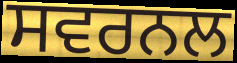
ਸਵਰਨਲ